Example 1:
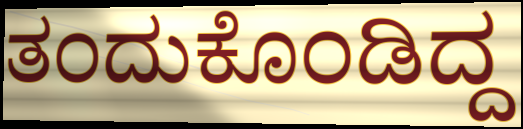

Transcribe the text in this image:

ತಂದುಕೊಂಡಿದ್ದ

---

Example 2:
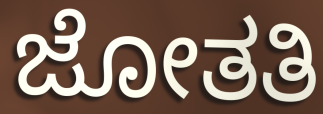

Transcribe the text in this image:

ಜೋತತಿ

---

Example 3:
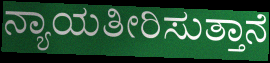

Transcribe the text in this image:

ನ್ಯಾಯತೀರಿಸುತ್ತಾನೆ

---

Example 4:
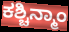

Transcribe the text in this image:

ಕಶ್ಚಿನ್ಮಾಂ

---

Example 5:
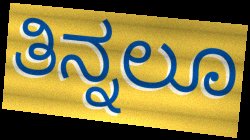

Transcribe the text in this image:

ತಿನ್ನಲೂ